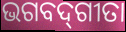
ଭଗବଦ୍‌ଗୀତା